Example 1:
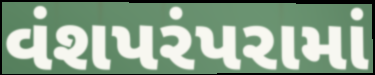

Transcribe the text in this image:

વંશપરંપરામાં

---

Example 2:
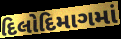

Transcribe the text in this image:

દિલોદિમાગમાં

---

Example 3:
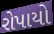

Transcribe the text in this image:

રોપાયો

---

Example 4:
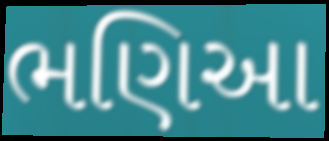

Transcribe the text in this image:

ભણિઆ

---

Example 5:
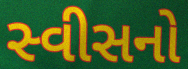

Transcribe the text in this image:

સ્વીસનો